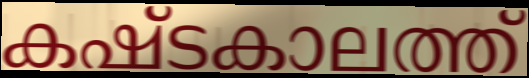
കഷ്ടകാലത്ത്